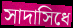
সাদাসিধে